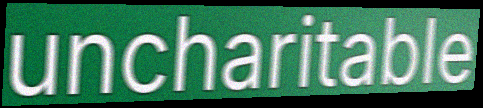
uncharitable